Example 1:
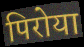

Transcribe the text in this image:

पिरोया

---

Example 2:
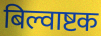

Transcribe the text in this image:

बिल्वाष्टक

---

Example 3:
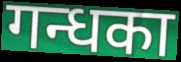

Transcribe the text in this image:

गन्धका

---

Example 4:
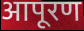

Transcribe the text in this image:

आपूरण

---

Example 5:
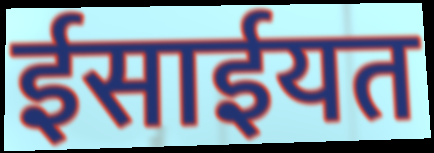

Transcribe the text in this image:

ईसाईयत